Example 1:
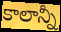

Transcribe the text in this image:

కాలాన్నీ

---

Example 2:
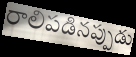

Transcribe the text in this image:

రాలిపడినప్పుడు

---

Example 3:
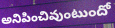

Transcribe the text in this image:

అనిపించివుంటుందో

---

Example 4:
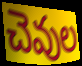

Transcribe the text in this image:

చెవుల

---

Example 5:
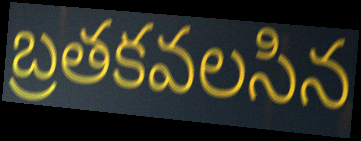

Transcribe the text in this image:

బ్రతకవలసిన